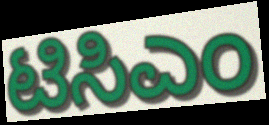
ಟಿಸಿಎಂ